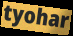
tyohar